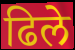
ढिले